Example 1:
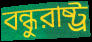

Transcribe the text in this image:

বন্ধুরাষ্ট্র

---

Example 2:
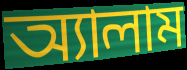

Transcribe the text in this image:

অ্যালাম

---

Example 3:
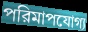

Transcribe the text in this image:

পরিমাপযোগ্য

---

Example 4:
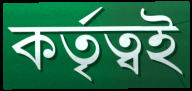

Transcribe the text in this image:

কর্তৃত্বই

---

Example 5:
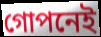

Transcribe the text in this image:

গোপনেই